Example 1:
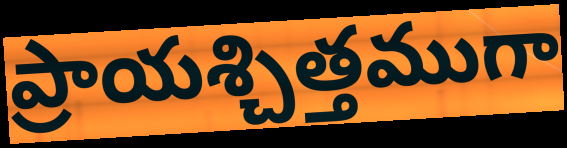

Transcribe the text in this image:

ప్రాయశ్చిత్తముగా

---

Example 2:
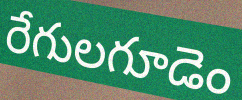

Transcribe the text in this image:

రేగులగూడెం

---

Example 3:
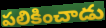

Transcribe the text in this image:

పలికించాడు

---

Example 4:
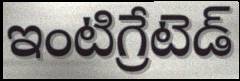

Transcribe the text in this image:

ఇంటిగ్రేటెడ్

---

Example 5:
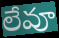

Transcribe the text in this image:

లేవూ